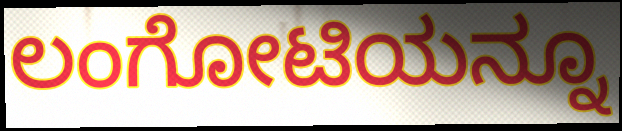
ಲಂಗೋಟಿಯನ್ನೂ